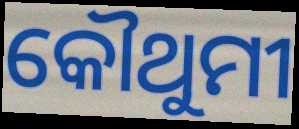
କୌଥୁମୀ